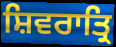
ਸ਼ਿਵਰਾਤ੍ਰਿ